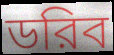
ডরিব